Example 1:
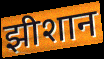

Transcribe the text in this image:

झीशान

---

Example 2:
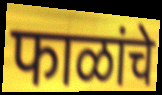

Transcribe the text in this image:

फाळांचे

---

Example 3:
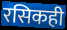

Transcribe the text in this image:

रसिकही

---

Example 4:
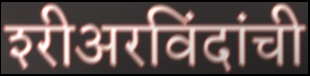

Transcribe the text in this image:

श्रीअरविंदांची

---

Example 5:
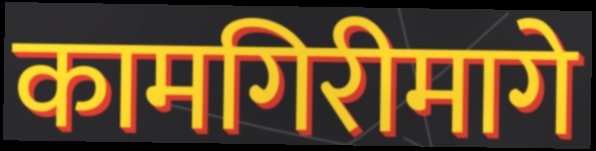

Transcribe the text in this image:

कामगिरीमागे